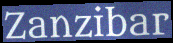
Zanzibar